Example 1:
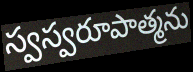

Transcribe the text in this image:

స్వస్వరూపాత్మను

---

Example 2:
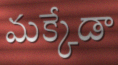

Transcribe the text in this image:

మక్కేడా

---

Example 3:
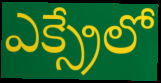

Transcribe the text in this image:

ఎక్స్రేలో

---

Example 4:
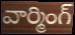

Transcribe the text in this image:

వార్మింగ్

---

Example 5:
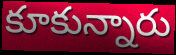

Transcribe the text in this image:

కూకున్నారు